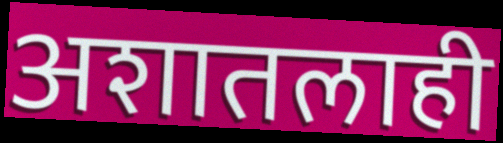
अशातलाही